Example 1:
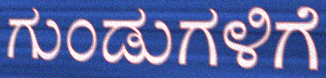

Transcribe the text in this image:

ಗುಂಡುಗಳಿಗೆ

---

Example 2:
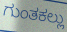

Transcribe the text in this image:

ಗುಂತಕಲ್ಲು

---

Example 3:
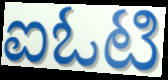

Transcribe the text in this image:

ಐಓಟಿ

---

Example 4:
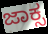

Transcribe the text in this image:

ಜಾಕ್ಸ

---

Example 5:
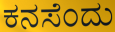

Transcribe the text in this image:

ಕನಸೆಂದು